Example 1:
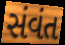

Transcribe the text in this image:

સંવંત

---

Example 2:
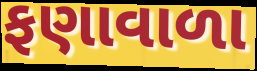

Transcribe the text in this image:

ફણાવાળા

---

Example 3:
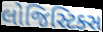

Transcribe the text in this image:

લોજિસ્ટિક્સ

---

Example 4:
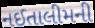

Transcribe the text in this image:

નઈતાલીમની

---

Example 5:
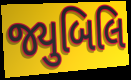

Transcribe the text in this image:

જ્યુબિલિ